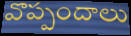
వొప్పందాలు